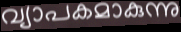
വ്യാപകമാകുന്നു